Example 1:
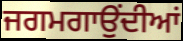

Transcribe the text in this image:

ਜਗਮਗਾਉਂਦੀਆਂ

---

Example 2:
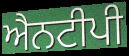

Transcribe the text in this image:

ਐਨਟੀਪੀ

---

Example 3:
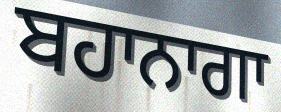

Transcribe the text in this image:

ਬਹਾਨਾਗਾ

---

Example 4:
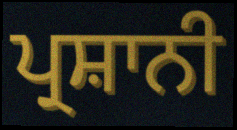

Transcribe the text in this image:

ਪ੍ਰਸ਼ਾਨੀ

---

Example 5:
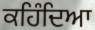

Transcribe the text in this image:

ਕਹਿੰਦਿਆ